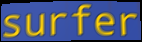
surfer